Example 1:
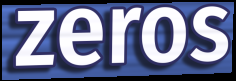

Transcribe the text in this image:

zeros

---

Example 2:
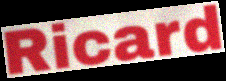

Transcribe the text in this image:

Ricard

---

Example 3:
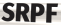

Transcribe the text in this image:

SRPF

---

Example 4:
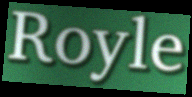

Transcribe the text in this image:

Royle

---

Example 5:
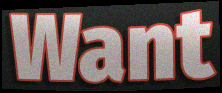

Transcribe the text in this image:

Want